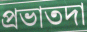
প্রভাতদা